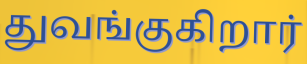
துவங்குகிறார்